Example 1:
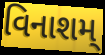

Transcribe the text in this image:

વિનાશમ્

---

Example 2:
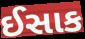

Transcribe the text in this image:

ઈસાક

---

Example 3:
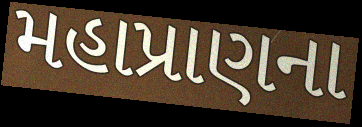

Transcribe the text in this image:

મહાપ્રાણના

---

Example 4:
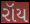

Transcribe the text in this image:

રૉય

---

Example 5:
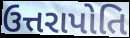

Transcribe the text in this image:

ઉત્તરાપોતિ